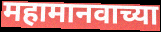
महामानवाच्या